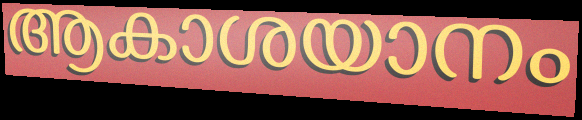
ആകാശയാനം